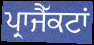
ਪ੍ਰਾਜੈੱਕਟਾਂ